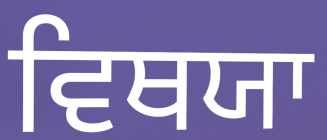
ਵਿਥਯਾ